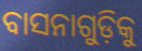
ବାସନାଗୁଡ଼ିକୁ